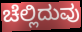
ಚೆಲ್ಲಿದುವು